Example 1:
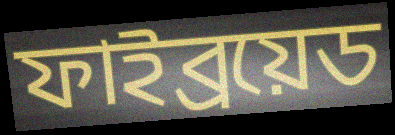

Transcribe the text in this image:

ফাইব্রয়েড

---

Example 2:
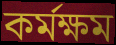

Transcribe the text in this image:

কর্মক্ষম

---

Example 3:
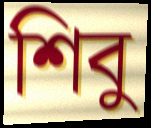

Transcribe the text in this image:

শিবু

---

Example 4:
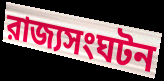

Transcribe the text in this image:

রাজ্যসংঘটন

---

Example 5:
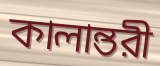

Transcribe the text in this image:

কালান্তরী